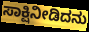
ಸಾಕ್ಷಿನೀಡಿದನು